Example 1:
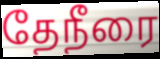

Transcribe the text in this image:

தேநீரை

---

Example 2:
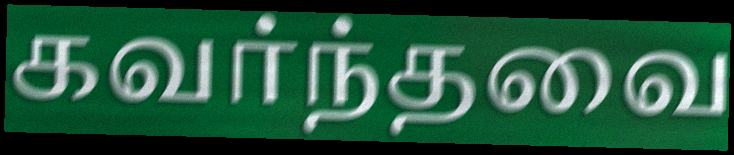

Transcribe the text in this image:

கவர்ந்தவை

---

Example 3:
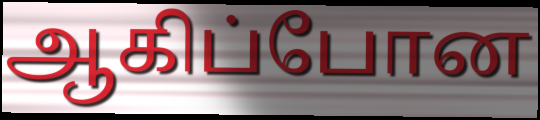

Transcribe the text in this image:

ஆகிப்போன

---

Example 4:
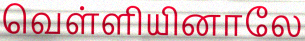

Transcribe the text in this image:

வெள்ளியினாலே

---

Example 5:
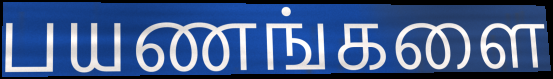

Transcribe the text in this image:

பயணங்களை